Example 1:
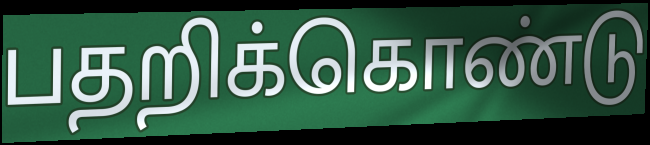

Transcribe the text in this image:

பதறிக்கொண்டு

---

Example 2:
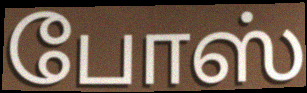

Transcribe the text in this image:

போஸ்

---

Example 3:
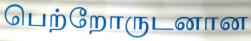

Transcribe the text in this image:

பெற்றோருடனான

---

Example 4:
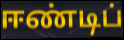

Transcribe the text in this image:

ஈண்டிப்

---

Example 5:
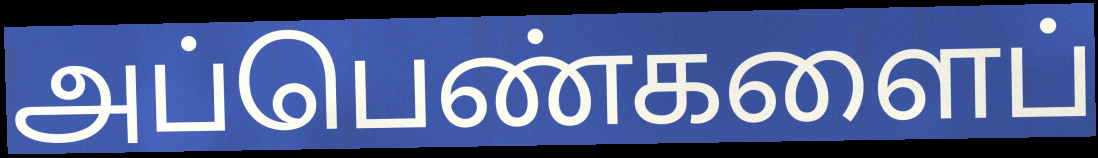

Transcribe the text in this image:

அப்பெண்களைப்